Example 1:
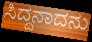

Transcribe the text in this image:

ಸಿದ್ದನಾದನು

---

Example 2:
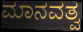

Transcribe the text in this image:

ಮಾನವತ್ವ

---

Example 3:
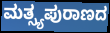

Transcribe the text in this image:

ಮತ್ಸ್ಯಪುರಾಣದ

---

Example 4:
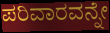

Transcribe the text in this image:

ಪರಿವಾರವನ್ನೇ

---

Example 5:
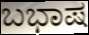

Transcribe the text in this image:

ಬಭಾಷ